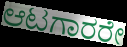
ಆಟಗಾರರೇ